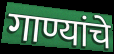
गाण्यांचे